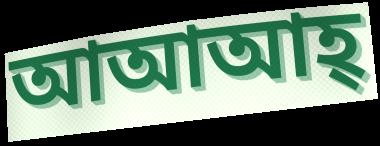
আআআহ্